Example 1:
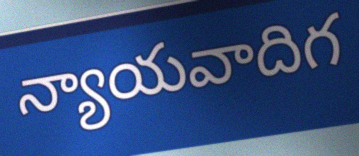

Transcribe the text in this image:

న్యాయవాదిగ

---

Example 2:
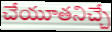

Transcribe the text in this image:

చేయూతనిచ్చే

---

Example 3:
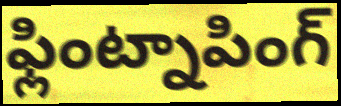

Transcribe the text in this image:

ఫ్లింట్నాపింగ్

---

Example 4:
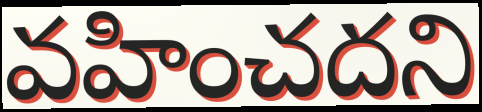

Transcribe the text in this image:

వహించదని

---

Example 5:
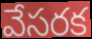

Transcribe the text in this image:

వేసరక